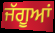
ਜੱਗੂਆਂ